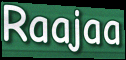
Raajaa